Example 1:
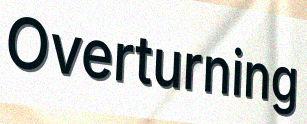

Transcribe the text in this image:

Overturning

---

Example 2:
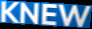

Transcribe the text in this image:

KNEW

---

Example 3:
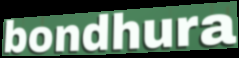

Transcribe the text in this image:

bondhura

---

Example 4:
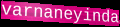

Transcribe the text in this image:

varnaneyinda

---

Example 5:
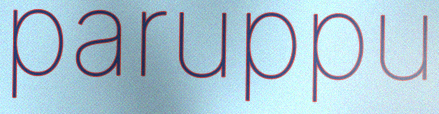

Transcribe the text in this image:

paruppu